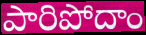
పారిపోదాం